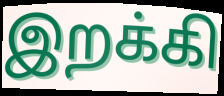
இறக்கி